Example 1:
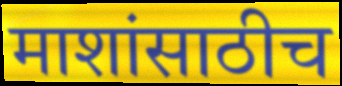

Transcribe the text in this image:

माशांसाठीच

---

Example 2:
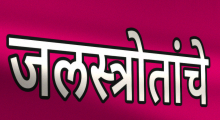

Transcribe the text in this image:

जलस्त्रोतांचे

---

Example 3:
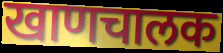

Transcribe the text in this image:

खाणचालक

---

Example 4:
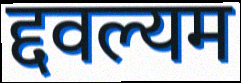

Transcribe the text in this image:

द्दवल्यम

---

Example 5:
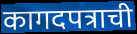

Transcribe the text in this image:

कागदपत्राची